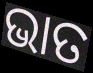
ଭାତ